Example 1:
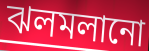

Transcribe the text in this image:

ঝলমলানো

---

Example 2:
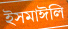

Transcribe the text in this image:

ইসমাঈলি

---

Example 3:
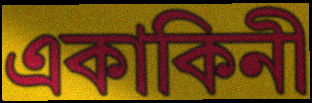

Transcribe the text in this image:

একাকিনী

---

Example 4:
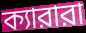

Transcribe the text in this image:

ক্যারারা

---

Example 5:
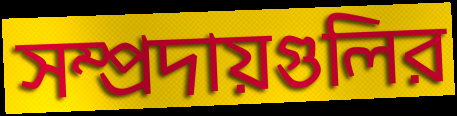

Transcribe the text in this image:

সম্প্রদায়গুলির